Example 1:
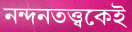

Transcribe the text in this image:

নন্দনতত্ত্বকেই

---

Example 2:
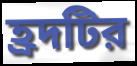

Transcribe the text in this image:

হ্রদটির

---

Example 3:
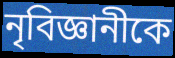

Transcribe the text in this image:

নৃবিজ্ঞানীকে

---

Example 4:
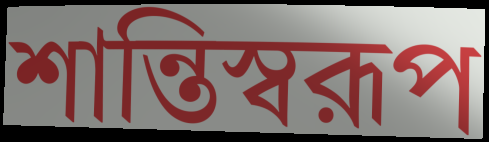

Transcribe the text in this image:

শান্তিস্বরূপ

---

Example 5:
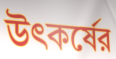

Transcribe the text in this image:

উৎকর্ষের